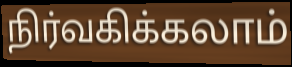
நிர்வகிக்கலாம்